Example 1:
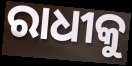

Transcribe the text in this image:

ରାଧୀକୁ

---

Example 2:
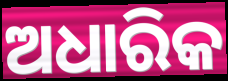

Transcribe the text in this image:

ଅଧାରିକ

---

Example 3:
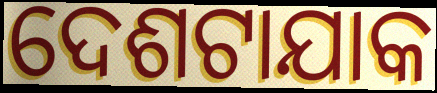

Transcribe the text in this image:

ଦେଶଟାଯାକ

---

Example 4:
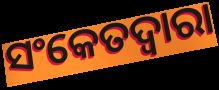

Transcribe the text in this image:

ସଂକେତଦ୍ଵାରା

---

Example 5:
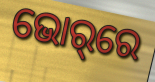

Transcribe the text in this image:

ଭୋର୍‌ରେ